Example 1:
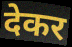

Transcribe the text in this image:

देकर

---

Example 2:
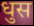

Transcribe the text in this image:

धुस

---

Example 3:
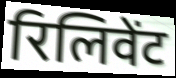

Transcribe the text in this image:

रिलिवेंट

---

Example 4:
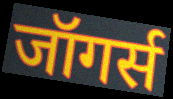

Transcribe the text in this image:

जॉगर्स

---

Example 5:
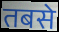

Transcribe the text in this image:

तबसे